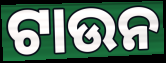
ଟାଉନ